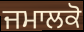
ਜਮਾਲਕੋ